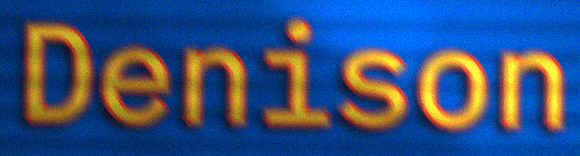
Denison